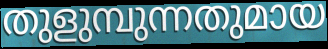
തുളുമ്പുന്നതുമായ